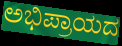
ಅಭಿಪ್ರಾಯದ